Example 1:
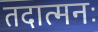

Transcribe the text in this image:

तदात्मनः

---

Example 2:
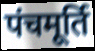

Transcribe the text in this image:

पंचमूर्ति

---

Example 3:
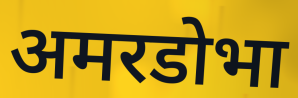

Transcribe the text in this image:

अमरडोभा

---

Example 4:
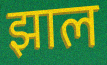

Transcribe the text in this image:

झाल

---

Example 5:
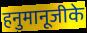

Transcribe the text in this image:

हनुमानूजीके